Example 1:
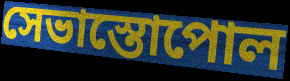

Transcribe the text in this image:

সেভাস্তোপোল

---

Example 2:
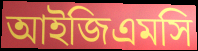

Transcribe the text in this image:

আইজিএমসি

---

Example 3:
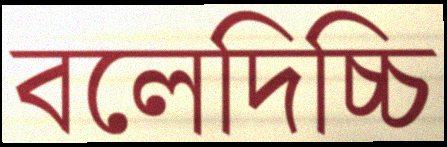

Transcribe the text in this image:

বলেদিচ্চি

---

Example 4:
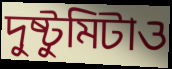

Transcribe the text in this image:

দুষ্টুমিটাও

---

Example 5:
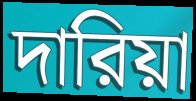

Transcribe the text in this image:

দারিয়া